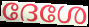
ദേശേ